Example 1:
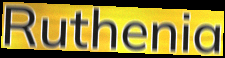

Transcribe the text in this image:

Ruthenia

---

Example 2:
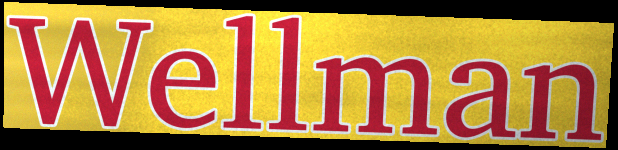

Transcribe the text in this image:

Wellman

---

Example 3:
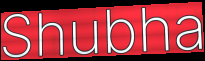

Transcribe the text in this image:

Shubha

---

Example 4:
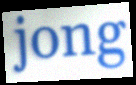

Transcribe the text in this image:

jong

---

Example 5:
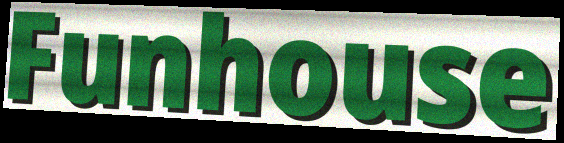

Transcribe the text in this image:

Funhouse